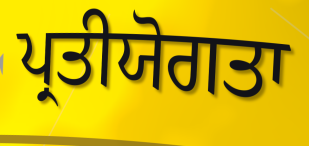
ਪ੍ਰਤੀਯੋਗਤਾ